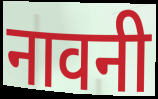
नावनी